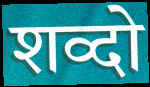
शव्दो